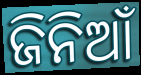
ଜିନିଆଁ